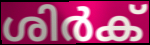
ശിർക്